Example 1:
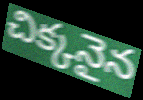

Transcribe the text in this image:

చిక్కనైన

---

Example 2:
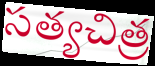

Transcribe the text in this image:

సత్యచిత్ర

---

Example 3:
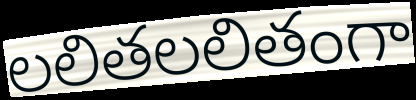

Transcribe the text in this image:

లలితలలితంగా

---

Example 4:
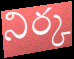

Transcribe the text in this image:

నిర్క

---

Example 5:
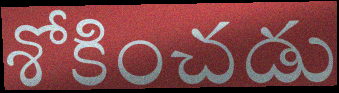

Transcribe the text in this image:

శోకించడు